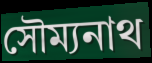
সৌম্যনাথ